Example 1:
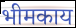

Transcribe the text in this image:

भीमकाय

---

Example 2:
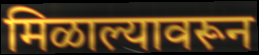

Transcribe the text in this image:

मिळाल्यावरून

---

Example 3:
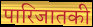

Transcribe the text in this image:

पारिजातकी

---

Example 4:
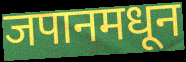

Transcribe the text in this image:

जपानमधून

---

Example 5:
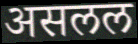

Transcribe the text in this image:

असलल